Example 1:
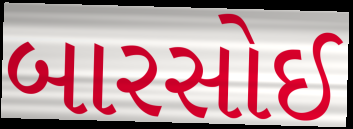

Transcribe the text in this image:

બારસોઈ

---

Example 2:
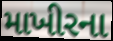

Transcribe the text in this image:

માખીરના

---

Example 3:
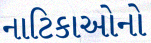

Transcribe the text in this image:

નાટિકાઓનો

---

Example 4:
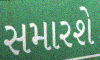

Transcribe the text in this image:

સમારશે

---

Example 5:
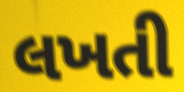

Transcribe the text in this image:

લખતી